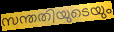
സന്തതിയുടെയും